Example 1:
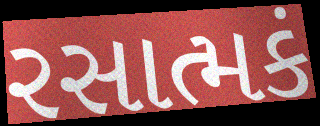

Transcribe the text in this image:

રસાત્મકં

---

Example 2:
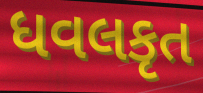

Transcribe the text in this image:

ધવલકૃત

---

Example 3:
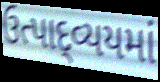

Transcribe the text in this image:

ઉત્પાદ્વ્યયમાં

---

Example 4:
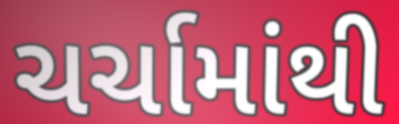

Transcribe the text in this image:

ચર્ચામાંથી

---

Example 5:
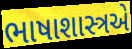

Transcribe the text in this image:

ભાષાશાસ્ત્રએ